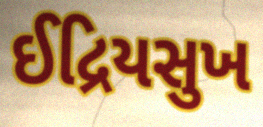
ઈદ્રિયસુખ